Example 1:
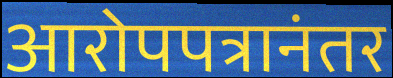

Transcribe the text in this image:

आरोपपत्रानंतर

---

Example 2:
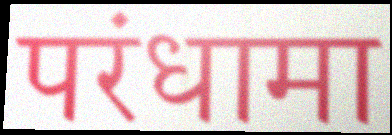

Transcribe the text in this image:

परंधामा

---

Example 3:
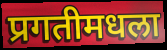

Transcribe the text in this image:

प्रगतीमधला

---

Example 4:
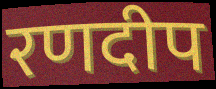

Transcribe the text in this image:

रणदीप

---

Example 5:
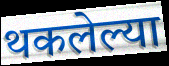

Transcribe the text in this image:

थकलेल्या